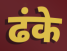
ढंके